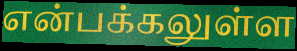
என்பக்கலுள்ள